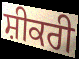
ਸ਼ੀਕਰੀ